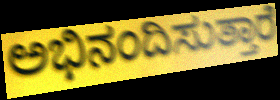
ಅಭಿನಂದಿಸುತ್ತಾರೆ